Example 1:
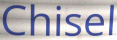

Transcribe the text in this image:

Chisel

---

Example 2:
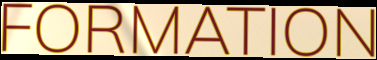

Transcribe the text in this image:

FORMATION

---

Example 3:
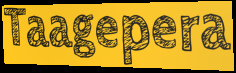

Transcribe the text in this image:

Taagepera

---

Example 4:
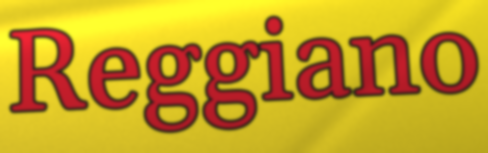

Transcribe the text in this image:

Reggiano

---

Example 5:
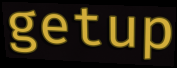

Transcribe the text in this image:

getup